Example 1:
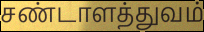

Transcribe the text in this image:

சண்டாளத்துவம்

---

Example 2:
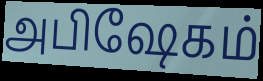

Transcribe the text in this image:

அபிஷேகம்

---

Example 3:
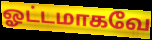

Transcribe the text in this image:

ஓட்டமாகவே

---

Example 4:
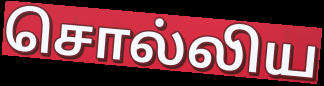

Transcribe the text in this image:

சொல்லிய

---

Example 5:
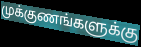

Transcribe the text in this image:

முக்குணங்களுக்கு